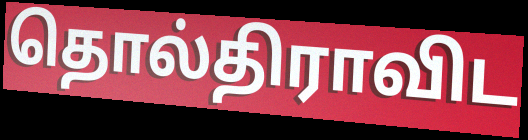
தொல்திராவிட